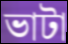
ভাটা